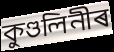
কুণ্ডলিনীৰ